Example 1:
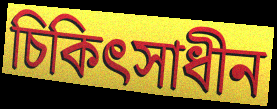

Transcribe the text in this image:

চিকিৎসাধীন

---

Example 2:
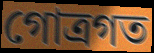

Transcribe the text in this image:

গোত্রগত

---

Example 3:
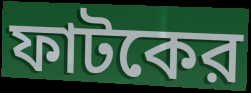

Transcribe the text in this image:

ফাটকের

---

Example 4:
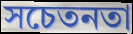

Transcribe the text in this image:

সচেতনতা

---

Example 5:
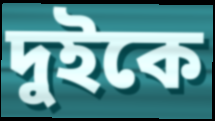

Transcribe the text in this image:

দুইকে